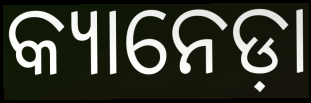
କ୍ୟାନେଡ଼ା